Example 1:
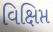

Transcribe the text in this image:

વિક્ષિપ્ત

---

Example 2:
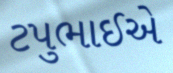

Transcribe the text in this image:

ટપુભાઈએ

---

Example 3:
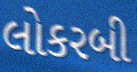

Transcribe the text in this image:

લોકરબી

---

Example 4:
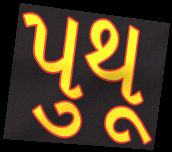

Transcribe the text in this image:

પુથૂ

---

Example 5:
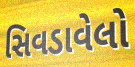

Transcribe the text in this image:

સિવડાવેલો